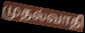
முதல்வாதி